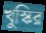
খুস্কির